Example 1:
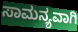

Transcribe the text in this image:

ಸಾಮನ್ಯವಾಗಿ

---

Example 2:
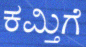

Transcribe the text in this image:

ಕಮ್ತಿಗೆ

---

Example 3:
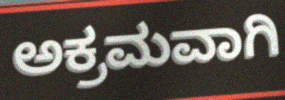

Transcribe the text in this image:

ಅಕ್ರಮವಾಗಿ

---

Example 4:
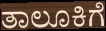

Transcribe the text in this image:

ತಾಲೂಕಿಗೆ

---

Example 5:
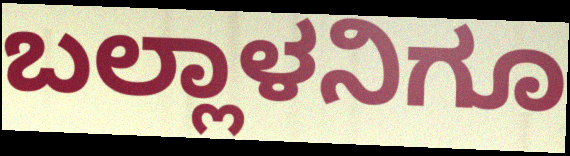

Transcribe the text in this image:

ಬಲ್ಲಾಳನಿಗೂ